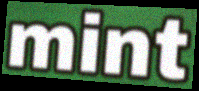
mint